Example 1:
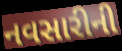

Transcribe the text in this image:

નવસારીની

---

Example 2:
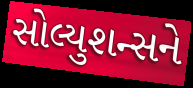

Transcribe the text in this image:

સોલ્યુશન્સને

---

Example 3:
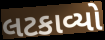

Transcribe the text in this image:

લટકાવ્યો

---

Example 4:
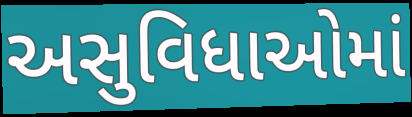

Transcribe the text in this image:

અસુવિધાઓમાં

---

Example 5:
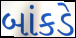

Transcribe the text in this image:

બાંકડે